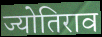
ज्योतिराव